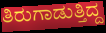
ತಿರುಗಾಡುತ್ತಿದ್ದ